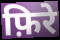
फ़िरे